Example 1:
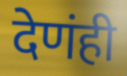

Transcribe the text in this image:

देणंही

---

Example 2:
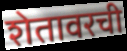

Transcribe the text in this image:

शेतावरची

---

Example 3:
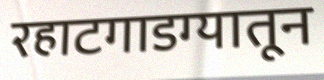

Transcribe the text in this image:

रहाटगाडग्यातून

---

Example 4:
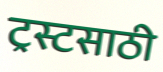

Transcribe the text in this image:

ट्रस्टसाठी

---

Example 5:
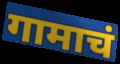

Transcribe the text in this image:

गामाचं